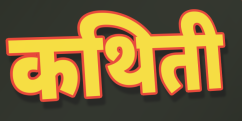
कथिती